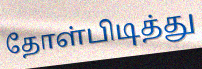
தோள்பிடித்து